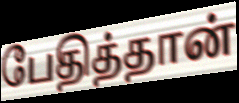
பேதித்தான்